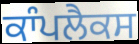
ਕਾੰਪਲੈਕਸ